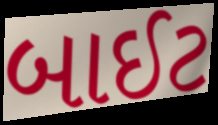
બાઈટ